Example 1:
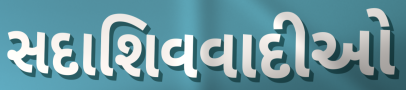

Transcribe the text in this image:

સદાશિવવાદીઓ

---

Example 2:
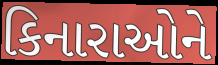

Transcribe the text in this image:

કિનારાઓને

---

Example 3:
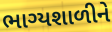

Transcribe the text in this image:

ભાગ્યશાળીને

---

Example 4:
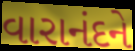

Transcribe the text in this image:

વારાનંદને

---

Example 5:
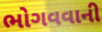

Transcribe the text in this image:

ભોગવવાની